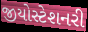
જીયોસ્ટેશનરી